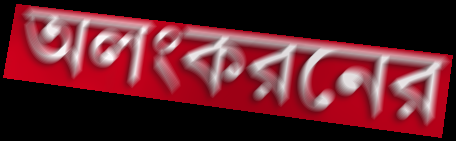
অলংকরনের